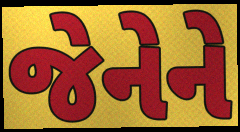
જેનેને